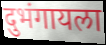
दुभंगायला